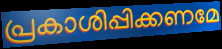
പ്രകാശിപ്പിക്കണമേ